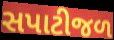
સપાટીજળ